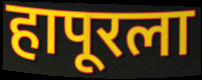
हापूरला